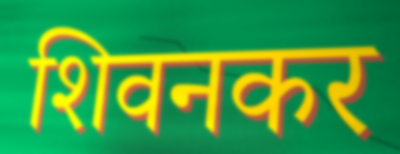
शिवनकर